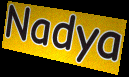
Nadya